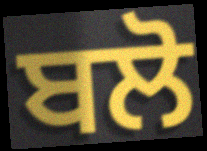
ਬਲੋ